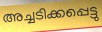
അച്ചടിക്കപ്പെട്ടു